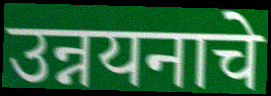
उन्नयनाचे